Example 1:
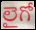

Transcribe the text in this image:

లైగో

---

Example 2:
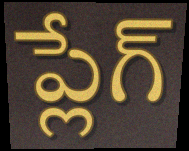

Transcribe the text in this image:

ప్లేగ్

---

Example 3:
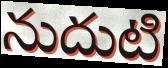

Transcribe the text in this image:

నుదుటి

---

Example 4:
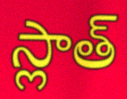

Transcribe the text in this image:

స్లాత్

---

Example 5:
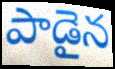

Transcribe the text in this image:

పాడైన